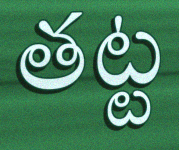
తట్ట